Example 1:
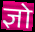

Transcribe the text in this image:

ज्ञो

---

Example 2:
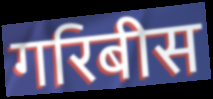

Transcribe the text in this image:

गरिबीस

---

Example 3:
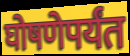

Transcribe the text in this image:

घोषणेपर्यंत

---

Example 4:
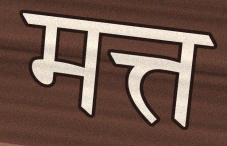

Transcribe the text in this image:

मत्त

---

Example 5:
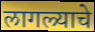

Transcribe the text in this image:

लागल्याचे